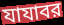
যাযাবর